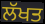
ਲੱਖਤ